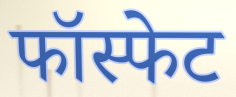
फॉस्फेट